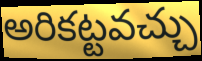
అరికట్టవచ్చు